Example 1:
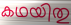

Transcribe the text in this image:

കഥയിതു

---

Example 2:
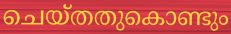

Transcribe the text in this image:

ചെയ്തതുകൊണ്ടും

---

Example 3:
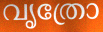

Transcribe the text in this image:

വൃത്രോ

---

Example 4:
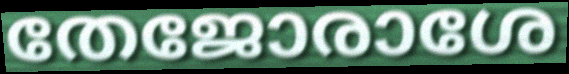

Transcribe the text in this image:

തേജോരാശേ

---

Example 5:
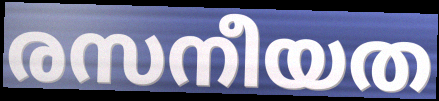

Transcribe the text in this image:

രസനീയത